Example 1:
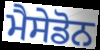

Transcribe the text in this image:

ਮੈਸੇਡੋਨ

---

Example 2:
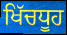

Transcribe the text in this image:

ਖਿੱਚਧੂਹ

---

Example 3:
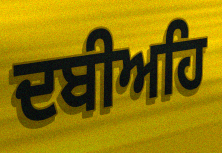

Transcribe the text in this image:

ਦਬੀਅਹਿ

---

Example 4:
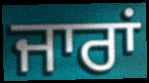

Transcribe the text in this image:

ਜਾਰਾਂ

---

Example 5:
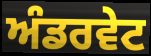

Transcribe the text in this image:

ਅੰਡਰਵੇਟ